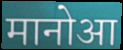
मानोआ